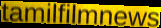
tamilfilmnews